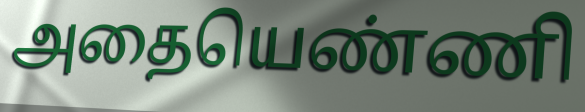
அதையெண்ணி